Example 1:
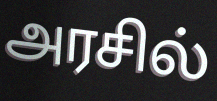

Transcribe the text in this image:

அரசில்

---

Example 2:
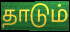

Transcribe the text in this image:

தாடும்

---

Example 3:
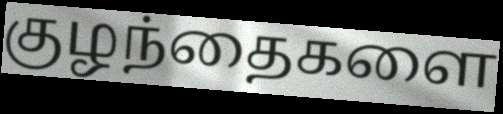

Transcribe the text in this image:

குழந்தைகளை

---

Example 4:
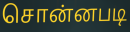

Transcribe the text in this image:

சொன்னபடி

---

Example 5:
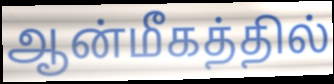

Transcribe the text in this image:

ஆன்மீகத்தில்